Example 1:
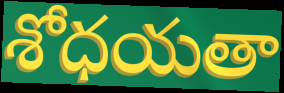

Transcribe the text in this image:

శోధయతా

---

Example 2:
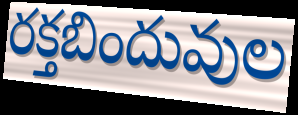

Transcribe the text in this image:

రక్తబిందువుల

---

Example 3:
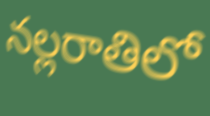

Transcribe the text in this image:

నల్లరాతిలో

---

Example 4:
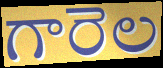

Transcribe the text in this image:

గారెల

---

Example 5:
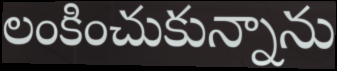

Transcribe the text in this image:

లంకించుకున్నాను